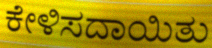
ಕೇಳಿಸದಾಯಿತು